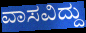
ವಾಸವಿದ್ದು